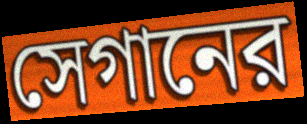
সেগানের